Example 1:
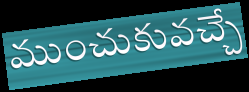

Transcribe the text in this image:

ముంచుకువచ్చే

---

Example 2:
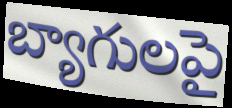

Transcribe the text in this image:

బ్యాగులపై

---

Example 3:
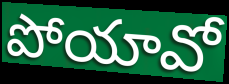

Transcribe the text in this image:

పోయావో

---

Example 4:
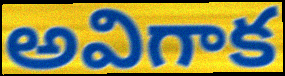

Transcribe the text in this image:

అవిగాక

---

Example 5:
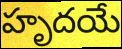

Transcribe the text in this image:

హృదయే